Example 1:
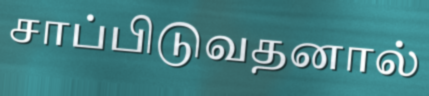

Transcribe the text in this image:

சாப்பிடுவதனால்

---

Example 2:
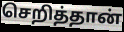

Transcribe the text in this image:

செறித்தான்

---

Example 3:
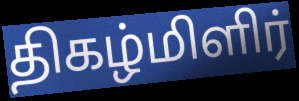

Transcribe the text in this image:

திகழ்மிளிர்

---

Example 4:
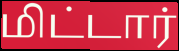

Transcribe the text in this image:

மிட்டார்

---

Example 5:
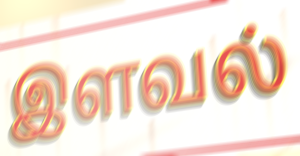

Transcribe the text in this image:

இளவல்